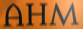
AHM